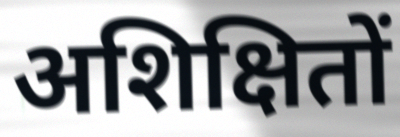
अशिक्षितों